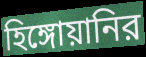
হিঙ্গোয়ানির